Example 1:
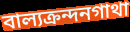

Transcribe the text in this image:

বাল্যক্রন্দনগাথা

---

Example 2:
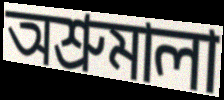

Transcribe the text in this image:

অশ্রুমালা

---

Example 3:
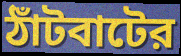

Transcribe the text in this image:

ঠাঁটবাটের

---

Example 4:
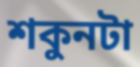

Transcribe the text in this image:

শকুনটা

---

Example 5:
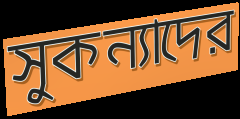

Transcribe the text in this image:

সুকন্যাদের